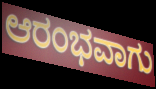
ಆರಂಭವಾಗು